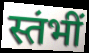
स्तंभीं